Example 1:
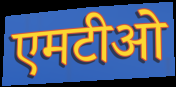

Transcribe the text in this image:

एमटीओ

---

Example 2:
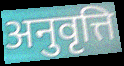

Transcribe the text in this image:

अनुवृत्ति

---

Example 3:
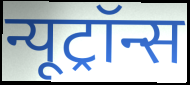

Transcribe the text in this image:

न्यूट्रॉन्स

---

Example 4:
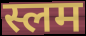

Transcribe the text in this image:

स्लम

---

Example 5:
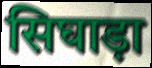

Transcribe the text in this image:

सिघाड़ा